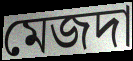
মেজদা